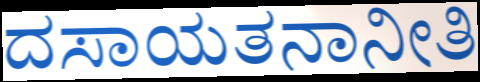
ದಸಾಯತನಾನೀತಿ